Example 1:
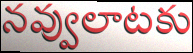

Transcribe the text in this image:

నవ్వులాటకు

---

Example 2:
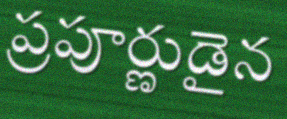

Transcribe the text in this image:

ప్రపూర్ణుడైన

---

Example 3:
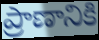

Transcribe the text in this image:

ప్రాణానికి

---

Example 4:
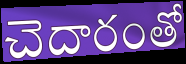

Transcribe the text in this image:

చెదారంతో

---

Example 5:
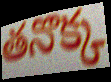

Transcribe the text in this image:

తనొక్క